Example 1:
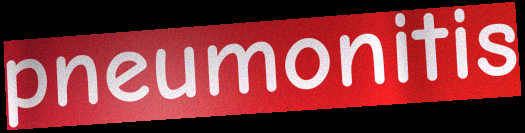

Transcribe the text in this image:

pneumonitis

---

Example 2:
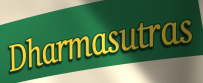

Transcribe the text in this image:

Dharmasutras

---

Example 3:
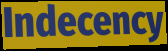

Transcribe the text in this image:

Indecency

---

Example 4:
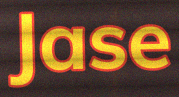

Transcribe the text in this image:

Jase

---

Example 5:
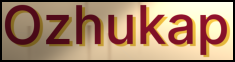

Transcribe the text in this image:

Ozhukap